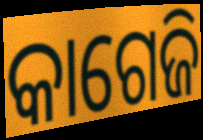
କାଗେଜି